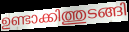
ഉണ്ടാക്കിത്തുടങ്ങി